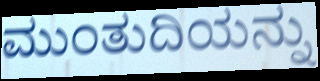
ಮುಂತುದಿಯನ್ನು